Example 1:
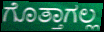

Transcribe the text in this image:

ಗೊತ್ತಾಗಲ್ಲ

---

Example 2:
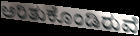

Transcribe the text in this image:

ಅರಿತುಕೊಂಡಿರುವೆ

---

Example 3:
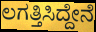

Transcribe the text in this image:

ಲಗತ್ತಿಸಿದ್ದೇನೆ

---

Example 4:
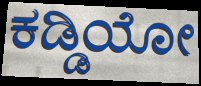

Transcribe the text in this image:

ಕಡ್ಡಿಯೋ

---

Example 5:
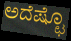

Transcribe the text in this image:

ಅದೆಷ್ಟೊ